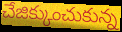
చేజిక్కుంచుకున్న